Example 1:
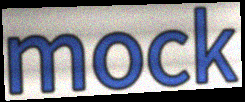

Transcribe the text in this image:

mock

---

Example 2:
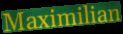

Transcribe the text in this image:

Maximilian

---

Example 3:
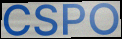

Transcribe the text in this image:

CSPO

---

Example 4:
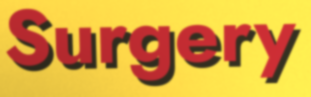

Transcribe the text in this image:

Surgery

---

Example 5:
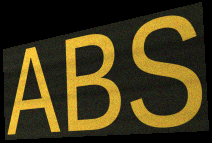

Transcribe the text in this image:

ABS